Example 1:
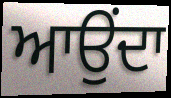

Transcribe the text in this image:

ਆਉੰਦਾ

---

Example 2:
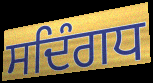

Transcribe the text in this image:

ਸਦਿੰਗਧ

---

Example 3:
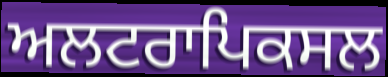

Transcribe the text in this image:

ਅਲਟਰਾਪਿਕਸਲ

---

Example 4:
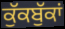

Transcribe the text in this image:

ਕੁੱਕਬੁੱਕਾਂ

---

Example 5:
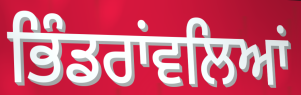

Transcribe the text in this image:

ਭਿੰਡਰਾਂਵਲਿਆਂ